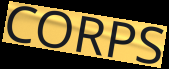
CORPS